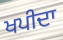
ਖਪੀਦਾ